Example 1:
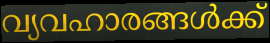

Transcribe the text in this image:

വ്യവഹാരങ്ങൾക്ക്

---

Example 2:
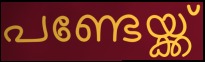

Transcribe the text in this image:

പണ്ടേയ്ക്ക്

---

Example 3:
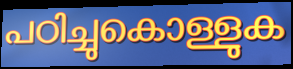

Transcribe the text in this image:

പഠിച്ചുകൊള്ളുക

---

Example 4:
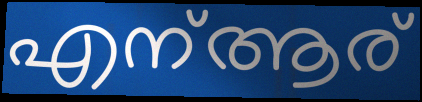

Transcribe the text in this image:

എന്ആര്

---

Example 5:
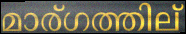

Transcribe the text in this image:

മാര്ഗത്തില്